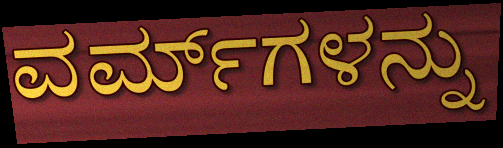
ವರ್ಮ್‌ಗಳನ್ನು